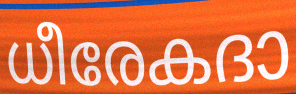
ധീരേകദാ